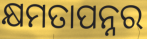
କ୍ଷମତାପନ୍ନର